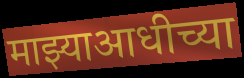
माझ्याआधीच्या